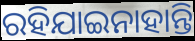
ରହିଯାଇନାହାନ୍ତି